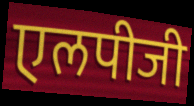
एलपीजी